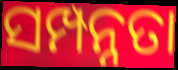
ସମ୍ପନ୍ନତା